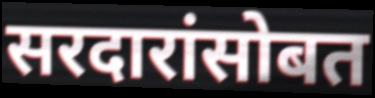
सरदारांसोबत